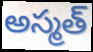
అస్మత్